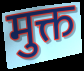
मुक्त